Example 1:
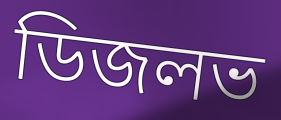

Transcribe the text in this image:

ডিজলভ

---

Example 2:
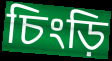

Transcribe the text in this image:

চিংড়ি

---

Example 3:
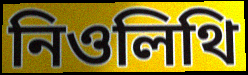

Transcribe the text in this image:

নিওলিথি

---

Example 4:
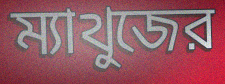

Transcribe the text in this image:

ম্যাথুজের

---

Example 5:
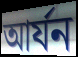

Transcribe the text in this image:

আর্যন